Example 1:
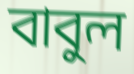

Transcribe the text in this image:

বাবুল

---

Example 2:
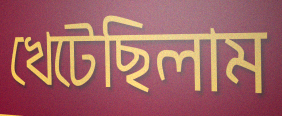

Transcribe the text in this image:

খেটেছিলাম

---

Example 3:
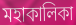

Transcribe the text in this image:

মহাকালিকা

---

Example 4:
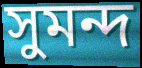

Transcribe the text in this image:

সুমন্দ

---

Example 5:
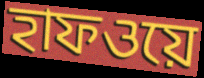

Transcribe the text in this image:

হাফওয়ে